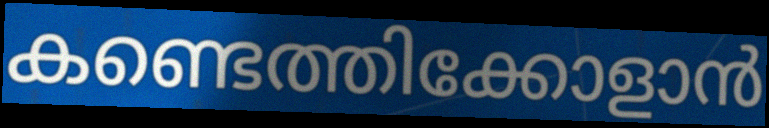
കണ്ടെത്തിക്കോളാൻ